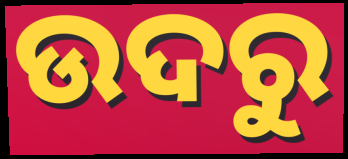
ଉଦରୁ